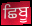
ਛਿਬੂ